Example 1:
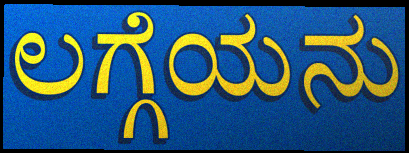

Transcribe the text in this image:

ಲಗ್ಗೆಯನು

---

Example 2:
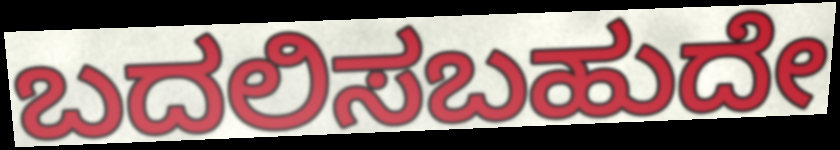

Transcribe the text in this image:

ಬದಲಿಸಬಹುದೇ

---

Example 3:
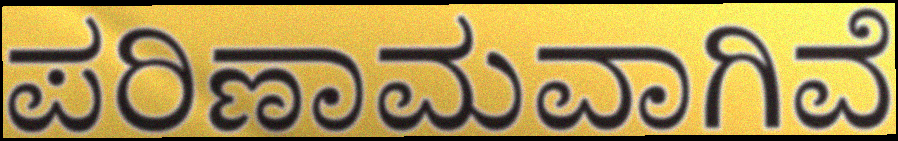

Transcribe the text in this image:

ಪರಿಣಾಮವಾಗಿವೆ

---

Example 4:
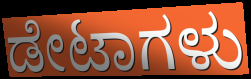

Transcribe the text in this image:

ಡೇಟಾಗಳು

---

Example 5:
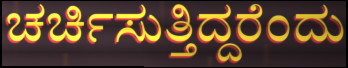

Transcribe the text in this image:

ಚರ್ಚಿಸುತ್ತಿದ್ದರೆಂದು